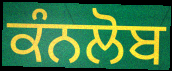
ਕੰਨਲੋਬ